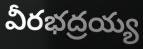
వీరభద్రయ్య